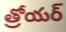
త్రోయర్